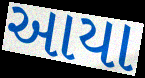
આયા